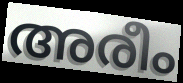
അരീം